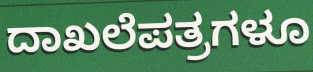
ದಾಖಲೆಪತ್ರಗಳೂ